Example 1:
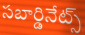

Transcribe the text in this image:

సబార్డినేట్స్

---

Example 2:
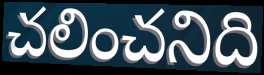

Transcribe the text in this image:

చలించనిది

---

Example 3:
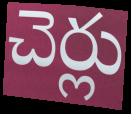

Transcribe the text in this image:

చెర్లు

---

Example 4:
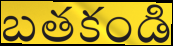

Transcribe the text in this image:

బతకండి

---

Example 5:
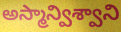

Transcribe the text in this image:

అస్మాన్విశ్వాని